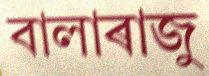
বালাৰাজু